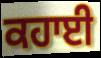
ਕਹਾਈ